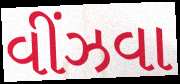
વીંઝવા